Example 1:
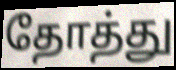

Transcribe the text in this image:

தோத்து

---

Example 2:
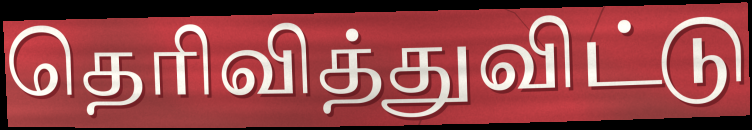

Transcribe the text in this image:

தெரிவித்துவிட்டு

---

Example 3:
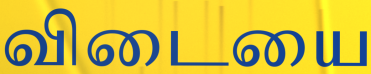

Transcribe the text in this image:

விடையை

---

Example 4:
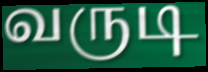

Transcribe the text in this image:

வருடி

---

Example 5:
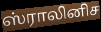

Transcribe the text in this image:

ஸ்ராலினிச